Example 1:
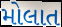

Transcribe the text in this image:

મોલાત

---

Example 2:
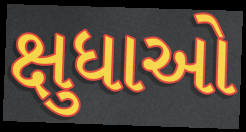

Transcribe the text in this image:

ક્ષુધાઓ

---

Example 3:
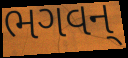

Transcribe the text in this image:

ભગવન્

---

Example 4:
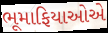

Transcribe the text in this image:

ભૂમાફિયાઓએ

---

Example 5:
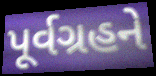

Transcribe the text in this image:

પૂર્વગ્રહને